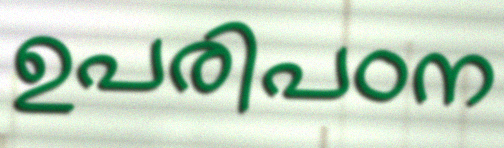
ഉപരിപഠന